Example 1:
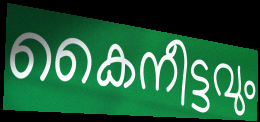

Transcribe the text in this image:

കൈനീട്ടവും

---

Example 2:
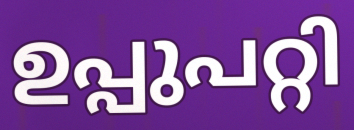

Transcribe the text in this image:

ഉപ്പുപറ്റി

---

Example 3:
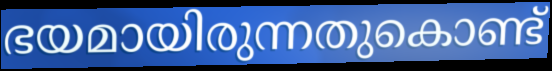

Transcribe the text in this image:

ഭയമായിരുന്നതുകൊണ്ട്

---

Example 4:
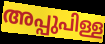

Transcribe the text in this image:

അപ്പുപിള്ള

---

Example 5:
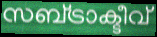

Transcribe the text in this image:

സബ്ട്രാക്ടീവ്